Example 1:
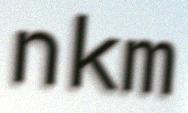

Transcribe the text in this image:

nkm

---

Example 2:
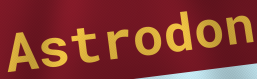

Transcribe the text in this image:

Astrodon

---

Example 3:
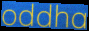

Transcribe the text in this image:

oddha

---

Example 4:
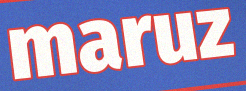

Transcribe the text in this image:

maruz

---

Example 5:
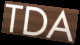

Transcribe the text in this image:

TDA